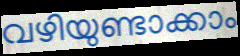
വഴിയുണ്ടാക്കാം